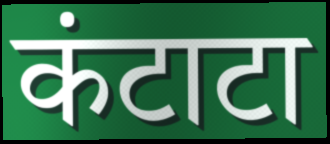
कंटाटा